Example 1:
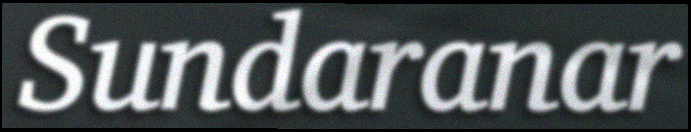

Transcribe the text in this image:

Sundaranar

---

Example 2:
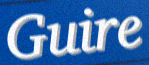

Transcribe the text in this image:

Guire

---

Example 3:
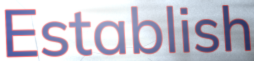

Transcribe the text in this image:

Establish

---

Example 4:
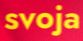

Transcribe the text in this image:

svoja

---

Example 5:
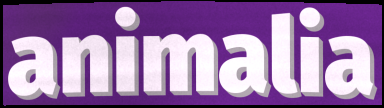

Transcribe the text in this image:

animalia